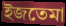
ইজতেমা